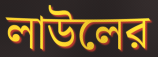
লাউলের